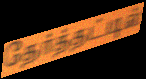
தேர்த்தட்டில்